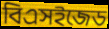
বিএসইজেড